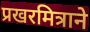
प्रखरमित्राने